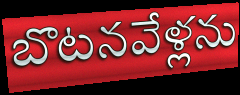
బొటనవేళ్లను